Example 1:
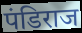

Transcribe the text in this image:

पंडिराज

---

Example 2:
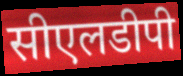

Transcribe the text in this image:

सीएलडीपी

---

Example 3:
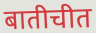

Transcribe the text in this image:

बातीचीत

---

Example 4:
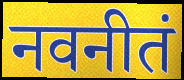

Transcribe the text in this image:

नवनीतं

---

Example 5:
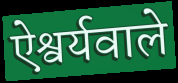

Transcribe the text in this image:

ऐश्वर्यवाले